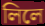
লিলে